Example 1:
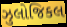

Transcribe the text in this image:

ઝુલોજિકલ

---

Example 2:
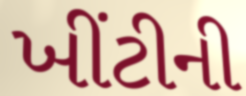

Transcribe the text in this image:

ખીંટીની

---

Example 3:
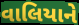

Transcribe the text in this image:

વાલિયાને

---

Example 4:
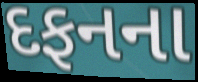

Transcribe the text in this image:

દફનના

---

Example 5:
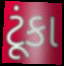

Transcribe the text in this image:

ટૂંકા